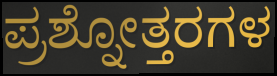
ಪ್ರಶ್ನೋತ್ತರಗಳ